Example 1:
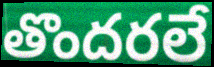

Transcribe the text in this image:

తొందరలే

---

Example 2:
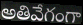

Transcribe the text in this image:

అతివేగంగా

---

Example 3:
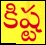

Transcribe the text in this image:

కిష్ట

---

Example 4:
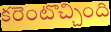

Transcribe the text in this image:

కరెంటొచ్చింది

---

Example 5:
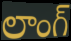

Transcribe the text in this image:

లాంగ్